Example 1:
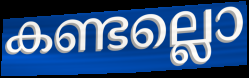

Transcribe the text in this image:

കണ്ടല്ലൊ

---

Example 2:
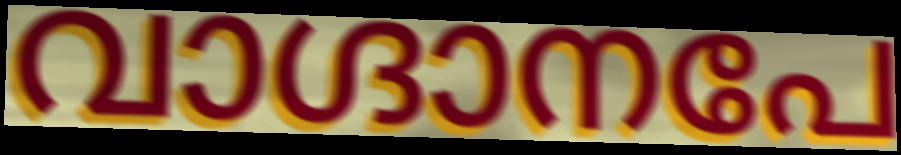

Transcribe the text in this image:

വാഗ്ദാനപേ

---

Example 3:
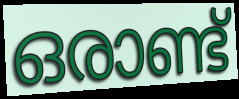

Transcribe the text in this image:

ഒരാണ്ട്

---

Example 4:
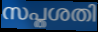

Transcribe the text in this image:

സപ്തശതി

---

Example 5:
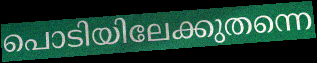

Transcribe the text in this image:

പൊടിയിലേക്കുതന്നെ